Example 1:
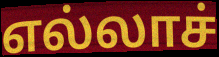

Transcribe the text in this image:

எல்லாச்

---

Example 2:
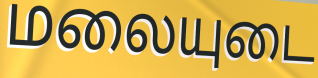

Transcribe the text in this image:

மலையுடை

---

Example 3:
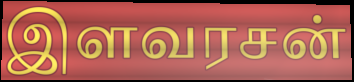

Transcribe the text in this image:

இளவரசன்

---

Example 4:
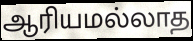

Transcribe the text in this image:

ஆரியமல்லாத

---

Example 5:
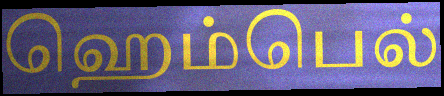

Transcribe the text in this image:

ஹெம்பெல்